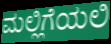
ಮಲ್ಲಿಗೆಯಲಿ